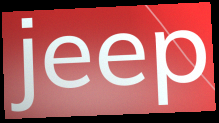
jeep